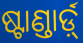
ଷ୍ଟାଣ୍ଡାର୍ଡ଼୍